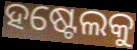
ହଷ୍ଟେଲକୁ